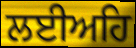
ਲਈਅਹਿ